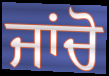
ਜਾਂਚੋ